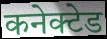
कनेक्टेड